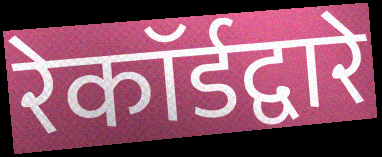
रेकॉर्डद्वारे